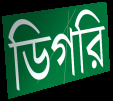
ডিগরি